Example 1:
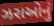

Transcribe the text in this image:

ઝરાઓનું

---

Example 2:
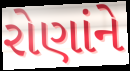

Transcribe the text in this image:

રોણાંને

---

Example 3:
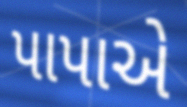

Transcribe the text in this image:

પાપાએ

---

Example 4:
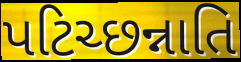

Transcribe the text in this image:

પટિચ્છન્નાતિ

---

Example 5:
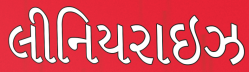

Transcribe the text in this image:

લીનિયરાઇઝ